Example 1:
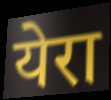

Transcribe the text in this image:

येरा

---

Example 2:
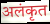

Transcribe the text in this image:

अलंकृत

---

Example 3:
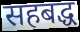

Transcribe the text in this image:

सहबद्ध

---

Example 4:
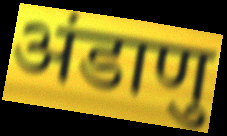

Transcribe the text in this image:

अंडाणु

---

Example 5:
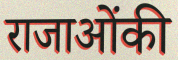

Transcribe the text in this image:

राजाओंकी